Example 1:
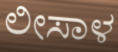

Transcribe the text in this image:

ಲೀಸಾಳ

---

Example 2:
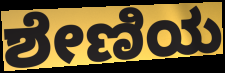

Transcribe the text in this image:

ಶೇಣಿಯ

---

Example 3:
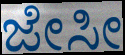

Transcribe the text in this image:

ಜೇಸೀ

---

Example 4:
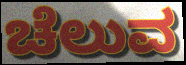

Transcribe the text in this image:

ಚೆಲುವ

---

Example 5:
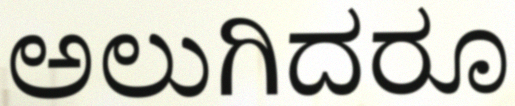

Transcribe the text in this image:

ಅಲುಗಿದರೂ